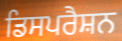
ਡਿਸਪਰੈਸ਼ਨ